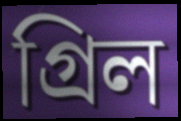
গ্রিল